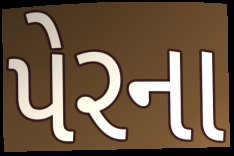
પેરના